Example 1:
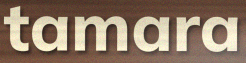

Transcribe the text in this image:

tamara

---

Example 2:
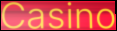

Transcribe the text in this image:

Casino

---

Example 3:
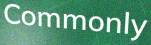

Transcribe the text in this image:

Commonly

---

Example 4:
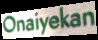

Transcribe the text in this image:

Onaiyekan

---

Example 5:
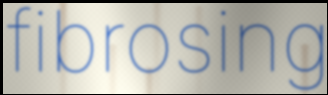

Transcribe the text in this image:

fibrosing